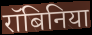
रॉबिनिया